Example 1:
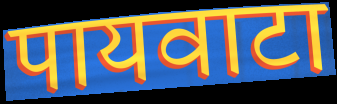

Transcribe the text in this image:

पायवाटा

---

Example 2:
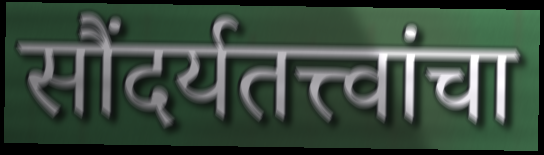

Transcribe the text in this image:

सौंदर्यतत्त्वांचा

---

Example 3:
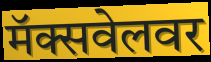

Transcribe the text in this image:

मॅक्सवेलवर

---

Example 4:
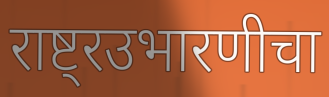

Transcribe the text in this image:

राष्ट्रउभारणीचा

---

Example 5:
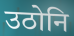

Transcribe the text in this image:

उठोनि